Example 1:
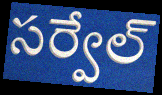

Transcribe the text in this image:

సర్వేల్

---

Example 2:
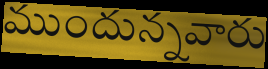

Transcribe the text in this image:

ముందున్నవారు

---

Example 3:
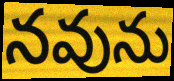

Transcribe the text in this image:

నవును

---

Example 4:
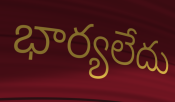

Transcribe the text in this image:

భార్యలేదు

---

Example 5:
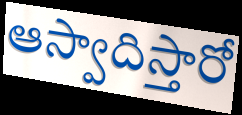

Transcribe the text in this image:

ఆస్వాదిస్తారో